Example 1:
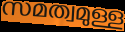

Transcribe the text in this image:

സമത്വമുള്ള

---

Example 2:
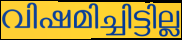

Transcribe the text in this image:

വിഷമിച്ചിട്ടില്ല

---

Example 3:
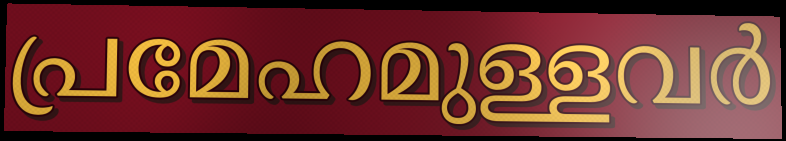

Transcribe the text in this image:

പ്രമേഹമുള്ളവർ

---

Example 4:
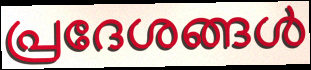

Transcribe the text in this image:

പ്രദേശങ്ങൾ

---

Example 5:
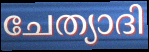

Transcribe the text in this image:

ചേത്യാദി